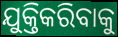
ଯୁକ୍ତିକରିବାକୁ